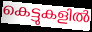
കെട്ടുകളിൽ